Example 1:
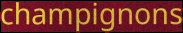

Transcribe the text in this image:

champignons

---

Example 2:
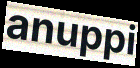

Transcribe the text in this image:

anuppi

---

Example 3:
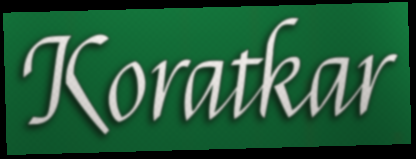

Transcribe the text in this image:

Koratkar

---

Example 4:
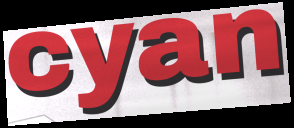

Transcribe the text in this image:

cyan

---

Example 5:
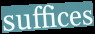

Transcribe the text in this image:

suffices